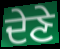
ਦੇਣੇ